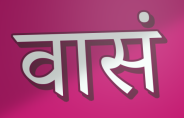
वासं